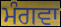
ਮੰਗਵਾ